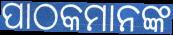
ପାଠକମାନଙ୍କ